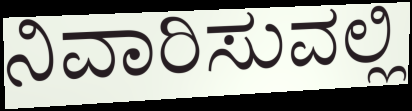
ನಿವಾರಿಸುವಲ್ಲಿ